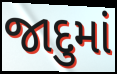
જાદુમાં